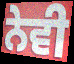
ਨੇਵੀ